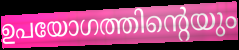
ഉപയോഗത്തിന്റെയും